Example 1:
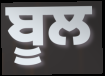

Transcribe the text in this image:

ਬੂਲ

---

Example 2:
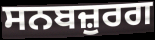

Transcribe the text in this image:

ਸਨਬਜ਼ੁਰਗ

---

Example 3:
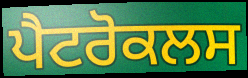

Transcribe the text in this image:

ਪੈਟਰੋਕਲਸ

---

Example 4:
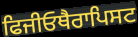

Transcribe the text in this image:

ਫਿਜੀਓਥੈਰਾਪਿਸਟ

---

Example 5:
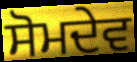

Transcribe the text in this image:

ਸੋਮਦੇਵ